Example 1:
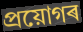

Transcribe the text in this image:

প্ৰয়োগৰ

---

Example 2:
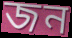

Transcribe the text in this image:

জন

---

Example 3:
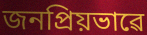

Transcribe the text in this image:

জনপ্ৰিয়ভাৱে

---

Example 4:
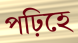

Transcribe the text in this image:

পঢ়িহে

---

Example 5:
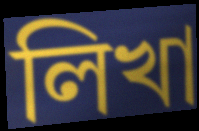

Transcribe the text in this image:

লিখা